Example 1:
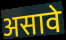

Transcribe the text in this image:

असावे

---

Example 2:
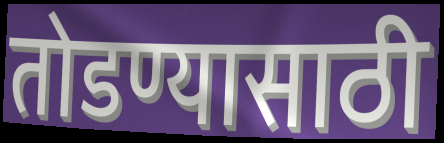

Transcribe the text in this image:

तोडण्यासाठी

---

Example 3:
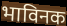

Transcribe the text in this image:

भाविनक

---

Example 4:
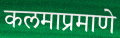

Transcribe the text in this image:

कलमाप्रमाणे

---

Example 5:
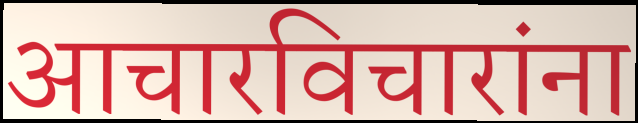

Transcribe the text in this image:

आचारविचारांना